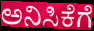
ಅನಿಸಿಕೆಗೆ